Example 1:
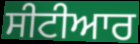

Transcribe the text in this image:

ਸੀਟੀਆਰ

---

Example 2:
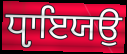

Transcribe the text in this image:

ਧੵਾਇਯਉ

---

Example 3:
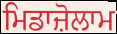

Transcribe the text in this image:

ਮਿਡਾਜ਼ੋਲਾਮ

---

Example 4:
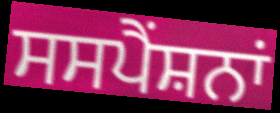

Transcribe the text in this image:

ਸਸਪੈਂਸ਼ਨਾਂ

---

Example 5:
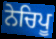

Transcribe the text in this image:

ਨੇਚਿਪੂ